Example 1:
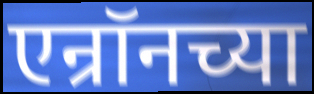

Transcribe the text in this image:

एन्रॉनच्या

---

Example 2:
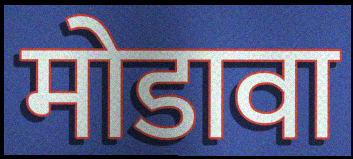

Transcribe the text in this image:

मोडावा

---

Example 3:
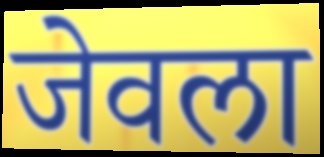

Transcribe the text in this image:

जेवला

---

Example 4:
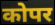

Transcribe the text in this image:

कोपर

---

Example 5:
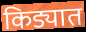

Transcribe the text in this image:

किड्यात